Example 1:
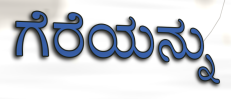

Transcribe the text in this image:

ಗೆರೆಯನ್ನು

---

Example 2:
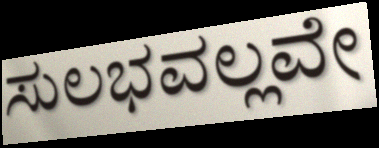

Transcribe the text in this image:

ಸುಲಭವಲ್ಲವೇ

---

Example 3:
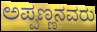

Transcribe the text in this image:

ಅಪ್ಪಣ್ಣನವರು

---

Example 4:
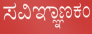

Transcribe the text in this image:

ಸವಿಞ್ಞಾಣಕಂ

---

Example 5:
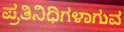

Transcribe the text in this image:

ಪ್ರತಿನಿಧಿಗಳಾಗುವ